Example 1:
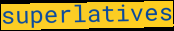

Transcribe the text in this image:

superlatives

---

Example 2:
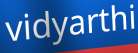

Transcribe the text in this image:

vidyarthi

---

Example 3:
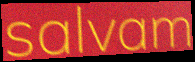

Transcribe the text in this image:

salvam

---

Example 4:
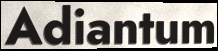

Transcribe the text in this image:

Adiantum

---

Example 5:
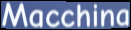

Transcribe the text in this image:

Macchina